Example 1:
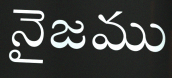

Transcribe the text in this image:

నైజము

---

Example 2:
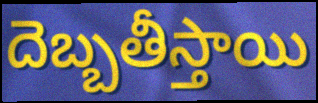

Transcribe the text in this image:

దెబ్బతీస్తాయి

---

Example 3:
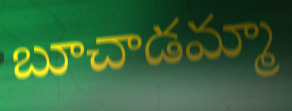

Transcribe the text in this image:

బూచాడమ్మా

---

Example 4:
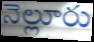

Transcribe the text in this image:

నెల్లూరు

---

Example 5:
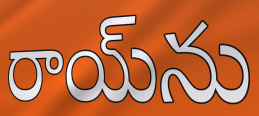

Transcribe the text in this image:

రాయ్‌ను